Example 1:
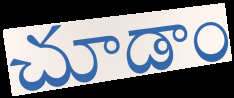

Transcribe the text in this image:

చూడాం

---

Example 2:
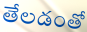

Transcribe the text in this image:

తేలడంతో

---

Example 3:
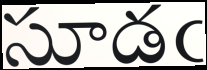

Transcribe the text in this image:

సూడఁ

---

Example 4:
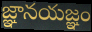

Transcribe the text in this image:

జ్ఞానయజ్ఞం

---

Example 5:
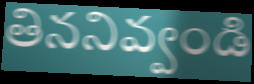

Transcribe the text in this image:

తిననివ్వండి